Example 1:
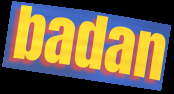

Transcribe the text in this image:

badan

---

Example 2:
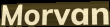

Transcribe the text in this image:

Morvan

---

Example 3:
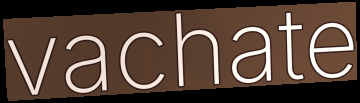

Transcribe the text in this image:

vachate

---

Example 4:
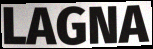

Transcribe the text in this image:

LAGNA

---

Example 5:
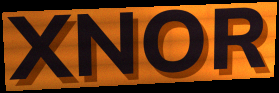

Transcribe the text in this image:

XNOR